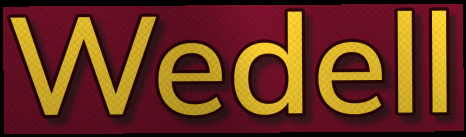
Wedell